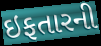
ઇફતારની